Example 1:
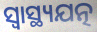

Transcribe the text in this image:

ସ୍ୱାସ୍ଥ୍ୟଯତ୍ନ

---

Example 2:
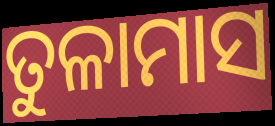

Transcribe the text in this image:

ତୁଳାମାସ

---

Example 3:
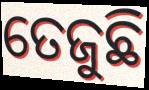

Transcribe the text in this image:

ତେଜୁଛି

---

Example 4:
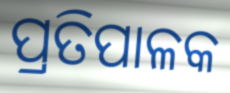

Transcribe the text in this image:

ପ୍ରତିପାଳକ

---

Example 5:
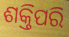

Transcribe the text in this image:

ଶକ୍ତିପରି